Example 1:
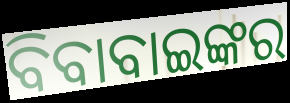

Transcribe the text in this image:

ବିବାବାଇଙ୍କର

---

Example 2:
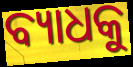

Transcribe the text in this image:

ବ୍ୟାଧକୁ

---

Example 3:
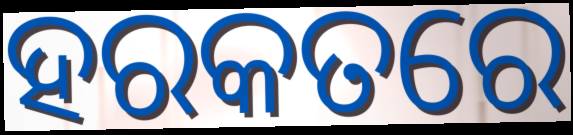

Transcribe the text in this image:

ହରକତରେ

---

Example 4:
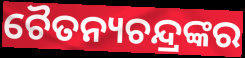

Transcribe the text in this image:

ଚୈତନ୍ୟଚନ୍ଦ୍ରଙ୍କର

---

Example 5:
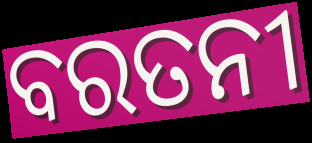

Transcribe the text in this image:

ବରତନୀ